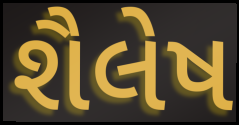
શૈલેષ